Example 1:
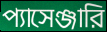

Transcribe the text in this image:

প্যাসেঞ্জারি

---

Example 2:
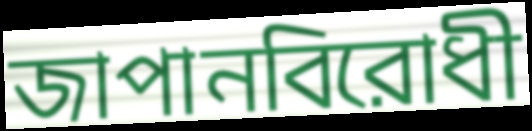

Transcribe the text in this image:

জাপানবিরোধী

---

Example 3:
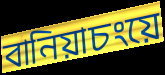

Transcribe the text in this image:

বানিয়াচংয়ে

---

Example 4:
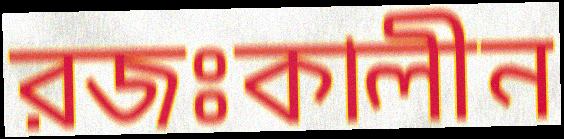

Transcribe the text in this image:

রজঃকালীন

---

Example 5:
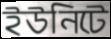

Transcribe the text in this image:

ইউনিটে